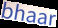
bhaar